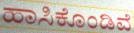
ಹಾಸಿಕೊಂಡಿವೆ